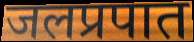
जलप्रपात